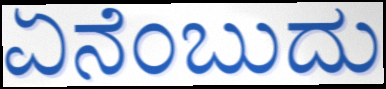
ಏನೆಂಬುದು